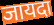
जायदा